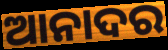
ଆନାଦର